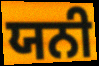
ਯਨੀ